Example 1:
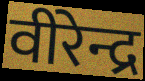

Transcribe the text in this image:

वीरेन्‍द्र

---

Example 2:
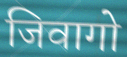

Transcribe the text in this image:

जिवागो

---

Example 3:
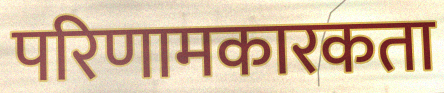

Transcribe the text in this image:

परिणामकारकता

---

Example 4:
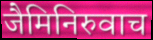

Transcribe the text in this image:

जैमिनिरुवाच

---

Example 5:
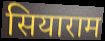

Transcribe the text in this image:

सियाराम